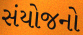
સંયોજનો